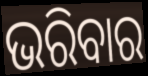
ଭରିବାର